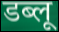
डब्लू